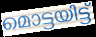
മൊട്ടയിട്ട്